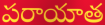
పరాయాత